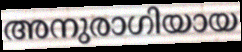
അനുരാഗിയായ